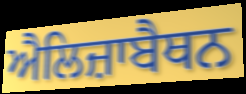
ਐਲਿਜ਼ਾਬੈਥਨ